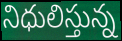
నిధులిస్తున్న